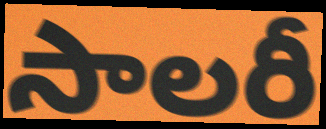
సాలరీ